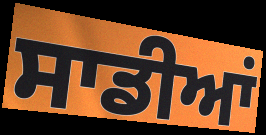
ਸਾਡੀਆਂ